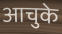
आचुके